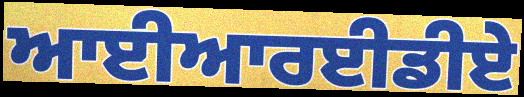
ਆਈਆਰਈਡੀਏ